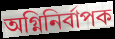
অগ্নিনিৰ্বাপক